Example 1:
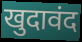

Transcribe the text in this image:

खुदावंद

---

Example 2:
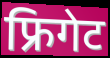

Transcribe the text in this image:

फ्रिगेट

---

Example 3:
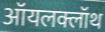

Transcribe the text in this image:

ऑयलक्लॉथ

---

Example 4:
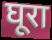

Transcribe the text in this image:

घूरा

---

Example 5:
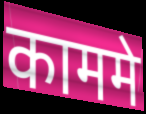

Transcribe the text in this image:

काममे